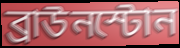
ব্রাউনস্টোন